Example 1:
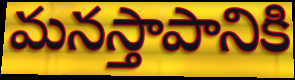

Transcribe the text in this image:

మనస్తాపానికి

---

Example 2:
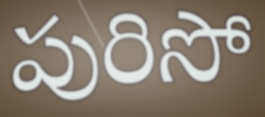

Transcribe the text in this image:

పురిసో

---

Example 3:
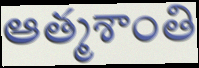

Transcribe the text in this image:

ఆత్మశాంతి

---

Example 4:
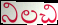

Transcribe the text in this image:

నిలచి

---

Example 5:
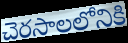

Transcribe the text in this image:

చెరసాలలోనికి